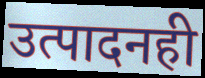
उत्पादनही